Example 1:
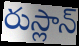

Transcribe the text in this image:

రుస్లాన్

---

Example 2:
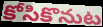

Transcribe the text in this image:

కోసికొనుట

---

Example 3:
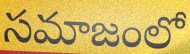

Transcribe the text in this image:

సమాజంలో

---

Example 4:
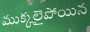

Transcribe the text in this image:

ముక్కలైపోయిన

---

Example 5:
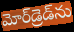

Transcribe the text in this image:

మోర్‌డ్రెడ్‌ను